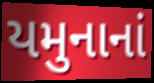
યમુનાનાં